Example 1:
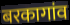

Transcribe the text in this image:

बरकागांव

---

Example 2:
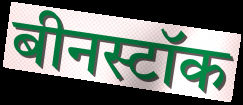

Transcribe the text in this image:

बीनस्टॉक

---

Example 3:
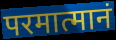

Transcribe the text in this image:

परमात्मानं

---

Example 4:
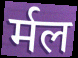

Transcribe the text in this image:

र्मल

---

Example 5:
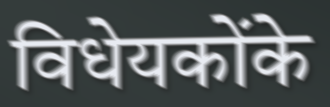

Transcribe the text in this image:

विधेयकोंके